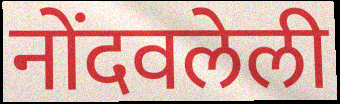
नोंदवलेली